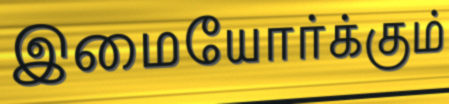
இமையோர்க்கும்